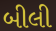
બીલી